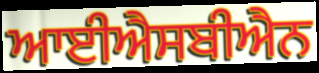
ਆਈਐਸਬੀਐਨ